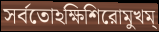
সর্বতোঽক্ষিশিরোমুখম্